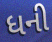
ધની